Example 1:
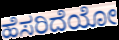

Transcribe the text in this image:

ಹೆಸರಿದೆಯೋ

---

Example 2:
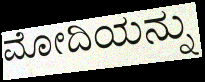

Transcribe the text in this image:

ಮೋದಿಯನ್ನು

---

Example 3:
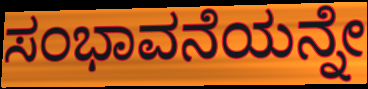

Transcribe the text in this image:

ಸಂಭಾವನೆಯನ್ನೇ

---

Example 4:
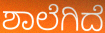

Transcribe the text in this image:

ಶಾಲೆಗಿದೆ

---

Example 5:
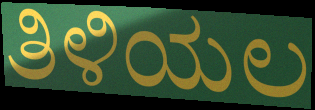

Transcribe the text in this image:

ತಿಳಿಯಲ